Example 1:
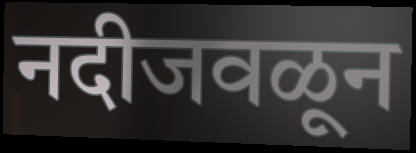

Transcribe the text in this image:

नदीजवळून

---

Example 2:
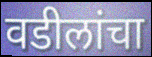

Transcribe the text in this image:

वडीलांचा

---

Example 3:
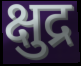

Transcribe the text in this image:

क्षुद्र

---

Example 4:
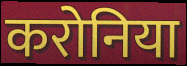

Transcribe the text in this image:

करोनिया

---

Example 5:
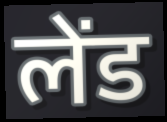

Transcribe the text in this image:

लेंड